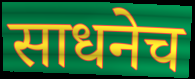
साधनेच